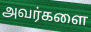
அவர்களை